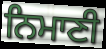
ਨਿਮਾਣੀ